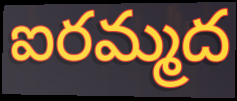
ఐరమ్మద